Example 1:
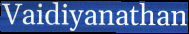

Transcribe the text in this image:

Vaidiyanathan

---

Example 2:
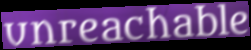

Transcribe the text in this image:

unreachable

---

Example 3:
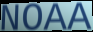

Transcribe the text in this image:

NOAA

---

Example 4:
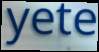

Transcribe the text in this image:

yete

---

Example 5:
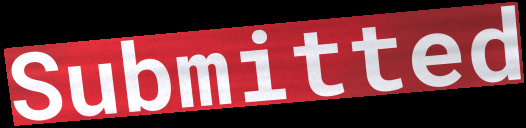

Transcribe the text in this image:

Submitted